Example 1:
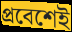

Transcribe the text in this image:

প্রবেশেই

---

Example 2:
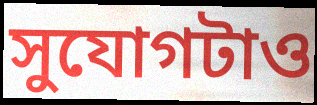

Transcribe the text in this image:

সুযোগটাও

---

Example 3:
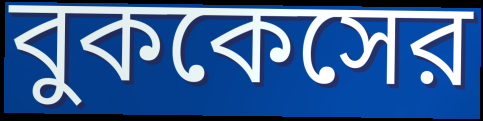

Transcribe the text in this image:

বুককেসের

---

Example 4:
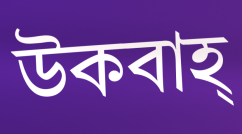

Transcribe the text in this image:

উকবাহ্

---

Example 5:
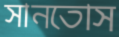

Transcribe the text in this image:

সানতোস